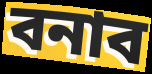
বনাব